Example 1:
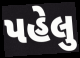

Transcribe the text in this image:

પહેલુ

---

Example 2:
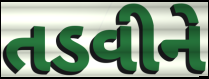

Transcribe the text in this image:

તડવીને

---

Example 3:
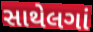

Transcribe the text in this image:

સાથેલગાં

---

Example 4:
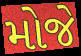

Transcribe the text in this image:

મોજે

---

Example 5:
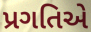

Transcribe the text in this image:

પ્રગતિએ